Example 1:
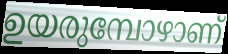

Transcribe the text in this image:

ഉയരുമ്പോഴാണ്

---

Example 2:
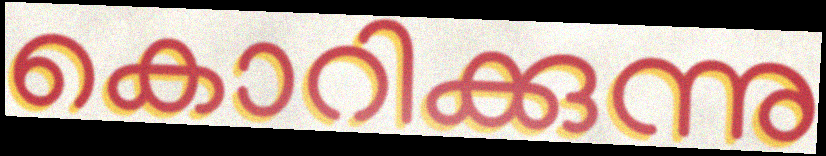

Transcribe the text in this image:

കൊറിക്കുന്നു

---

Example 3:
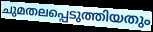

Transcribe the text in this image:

ചുമതലപ്പെടുത്തിയതും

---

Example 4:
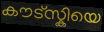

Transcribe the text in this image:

കൗട്സ്കിയെ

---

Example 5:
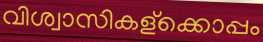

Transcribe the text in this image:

വിശ്വാസികള്ക്കൊപ്പം